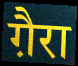
ग़ैरा